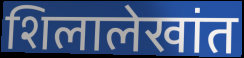
शिलालेखांत